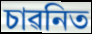
চাৱনিত